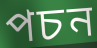
পচন